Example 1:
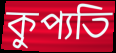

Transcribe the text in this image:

কুপ্যতি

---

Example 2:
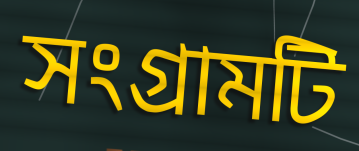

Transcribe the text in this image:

সংগ্রামটি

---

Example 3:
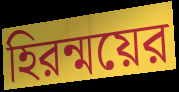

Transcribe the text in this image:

হিরন্ময়ের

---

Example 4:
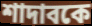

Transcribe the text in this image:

শাদাবকে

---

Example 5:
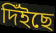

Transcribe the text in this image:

দিঁইছে